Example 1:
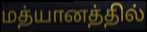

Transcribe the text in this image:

மத்யானத்தில்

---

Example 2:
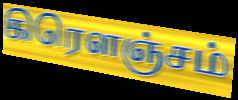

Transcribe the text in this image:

கிரௌஞ்சம்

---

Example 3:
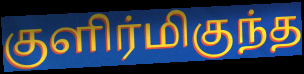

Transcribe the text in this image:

குளிர்மிகுந்த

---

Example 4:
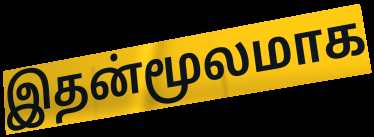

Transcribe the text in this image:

இதன்மூலமாக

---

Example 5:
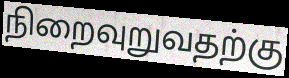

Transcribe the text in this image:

நிறைவுறுவதற்கு